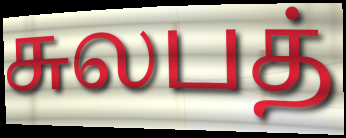
சுலபத்